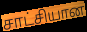
சாட்சியான